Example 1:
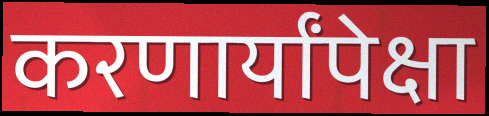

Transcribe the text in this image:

करणार्यांपेक्षा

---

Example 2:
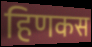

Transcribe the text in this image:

हिणकस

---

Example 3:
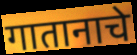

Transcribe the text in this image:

गातानाचे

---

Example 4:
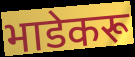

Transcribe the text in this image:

भाडेकरू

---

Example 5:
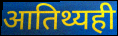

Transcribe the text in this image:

आतिथ्यही